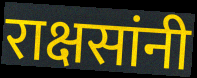
राक्षसांनी